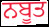
ਨਬੂਤ